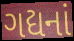
ગદ્યનાં